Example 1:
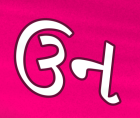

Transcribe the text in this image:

ઉન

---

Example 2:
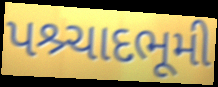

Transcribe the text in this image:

પશ્ર્ચાદભૂમી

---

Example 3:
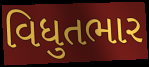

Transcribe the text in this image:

વિધુતભાર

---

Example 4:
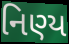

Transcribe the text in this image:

નિણ્ય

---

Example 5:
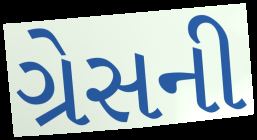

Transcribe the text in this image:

ગ્રેસની